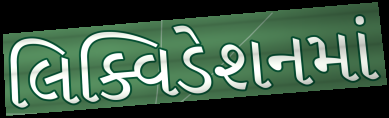
લિક્વિડેશનમાં